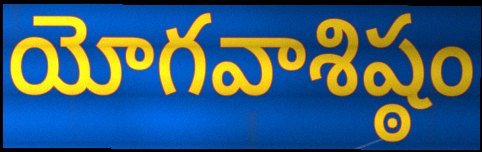
యోగవాశిష్ఠం